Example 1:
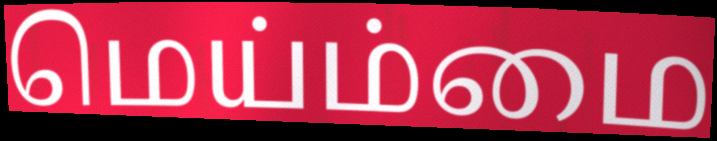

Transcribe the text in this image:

மெய்ம்மை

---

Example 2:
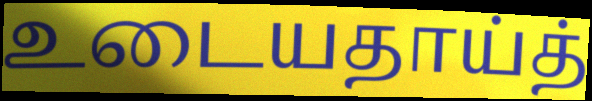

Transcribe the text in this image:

உடையதாய்த்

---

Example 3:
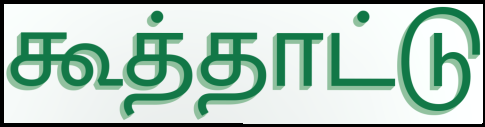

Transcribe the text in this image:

கூத்தாட்டு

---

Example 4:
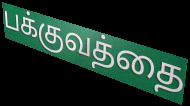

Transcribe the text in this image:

பக்குவத்தை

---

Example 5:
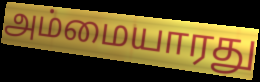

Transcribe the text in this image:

அம்மையாரது